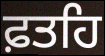
ਫ਼ਤਹਿ